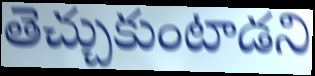
తెచ్చుకుంటాడని